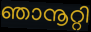
ഞാനൂറ്റി